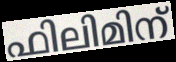
ഫിലിമിന്